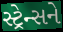
સ્ટ્રેન્સને